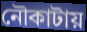
নৌকাটায়